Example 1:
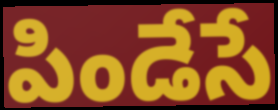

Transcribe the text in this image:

పిండేసే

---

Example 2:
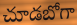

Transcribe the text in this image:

చూడబోగా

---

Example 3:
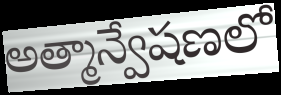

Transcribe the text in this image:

అత్మాన్వేషణలో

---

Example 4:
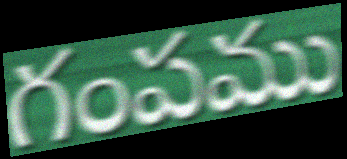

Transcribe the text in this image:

గంపము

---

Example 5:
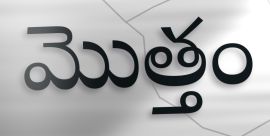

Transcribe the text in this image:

మొత్తం